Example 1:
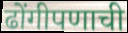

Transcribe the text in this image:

ढोंगीपणाची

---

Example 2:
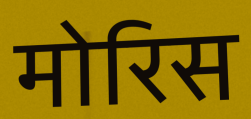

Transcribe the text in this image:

मोरिस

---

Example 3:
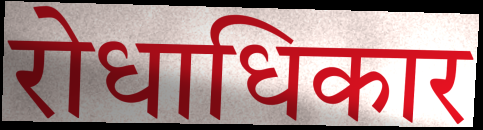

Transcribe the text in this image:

रोधाधिकार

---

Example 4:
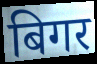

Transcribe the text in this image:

बिगर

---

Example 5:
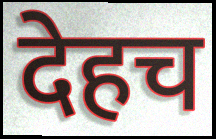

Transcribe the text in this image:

देहच